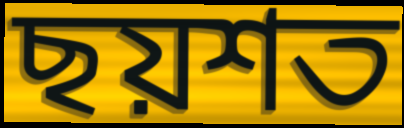
ছয়শত